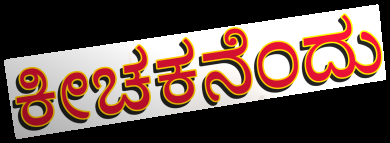
ಕೀಚಕನೆಂದು